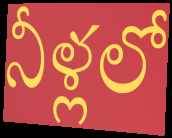
నీళ్లలో